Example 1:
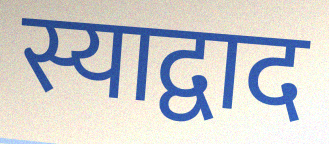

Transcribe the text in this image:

स्याद्वाद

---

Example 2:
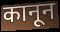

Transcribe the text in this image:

कानून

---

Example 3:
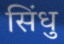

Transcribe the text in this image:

सिंधु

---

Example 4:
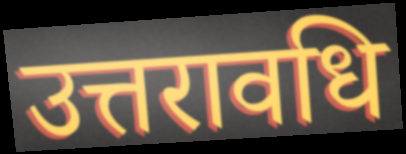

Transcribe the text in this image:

उत्तरावधि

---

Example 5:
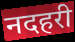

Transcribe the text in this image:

नदहरी